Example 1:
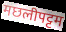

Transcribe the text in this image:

मछलीपट्टम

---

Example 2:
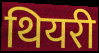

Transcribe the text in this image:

थियरी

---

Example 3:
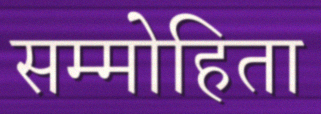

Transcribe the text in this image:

सम्मोहिता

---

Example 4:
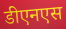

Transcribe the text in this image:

डीएनएस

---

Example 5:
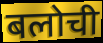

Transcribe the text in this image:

बलोची